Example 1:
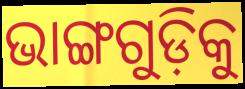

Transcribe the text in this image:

ଭାଙ୍ଗଗୁଡ଼ିକୁ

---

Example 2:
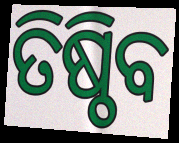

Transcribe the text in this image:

ତିଷ୍ଠିବ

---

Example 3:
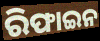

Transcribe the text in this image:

ରିଫାଇନ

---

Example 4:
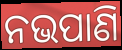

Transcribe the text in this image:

ନଭପାଣି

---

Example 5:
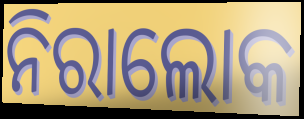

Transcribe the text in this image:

ନିରାଲୋକ